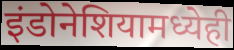
इंडोनेशियामध्येही